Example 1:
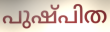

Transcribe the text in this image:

പുഷ്പിത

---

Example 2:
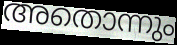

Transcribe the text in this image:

അതൊന്നും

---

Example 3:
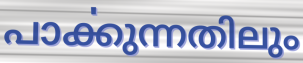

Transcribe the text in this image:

പാൎക്കുന്നതിലും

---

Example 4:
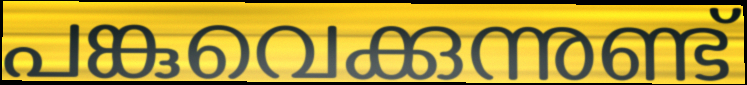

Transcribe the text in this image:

പങ്കുവെക്കുന്നുണ്ട്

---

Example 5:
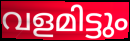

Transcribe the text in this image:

വളമിട്ടും